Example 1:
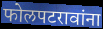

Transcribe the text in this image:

फोलपटरावांना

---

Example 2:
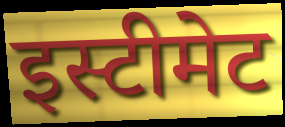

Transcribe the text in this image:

इस्टीमेट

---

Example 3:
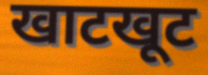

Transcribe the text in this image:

खाटखूट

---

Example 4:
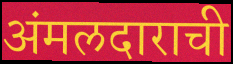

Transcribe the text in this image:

अंमलदाराची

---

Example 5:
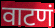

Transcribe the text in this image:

वाटणं